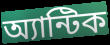
অ্যান্টিক